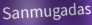
Sanmugadas